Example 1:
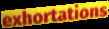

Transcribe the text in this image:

exhortations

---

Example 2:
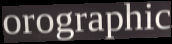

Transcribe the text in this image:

orographic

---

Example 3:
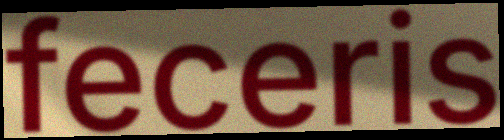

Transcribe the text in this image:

feceris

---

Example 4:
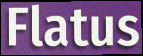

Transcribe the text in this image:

Flatus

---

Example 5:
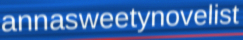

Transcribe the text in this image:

annasweetynovelist